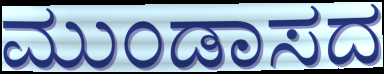
ಮುಂಡಾಸದ